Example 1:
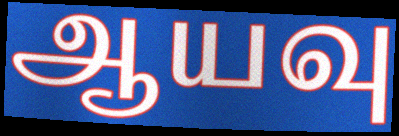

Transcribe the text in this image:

ஆயவு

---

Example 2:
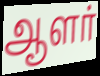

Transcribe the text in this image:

ஆளர்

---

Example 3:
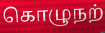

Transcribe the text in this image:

கொழுநற்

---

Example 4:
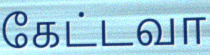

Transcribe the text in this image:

கேட்டவா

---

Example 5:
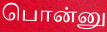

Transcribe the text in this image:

பொன்னு